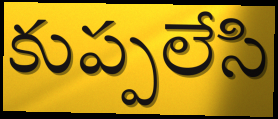
కుప్పలేసి